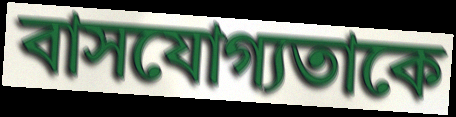
বাসযোগ্যতাকে